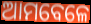
ଆମବେଳେ